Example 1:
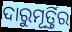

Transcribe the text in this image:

ଦାରୁମୂର୍ତ୍ତିର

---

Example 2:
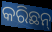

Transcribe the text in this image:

କରିଛନ୍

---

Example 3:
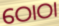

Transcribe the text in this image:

ଠୋଠା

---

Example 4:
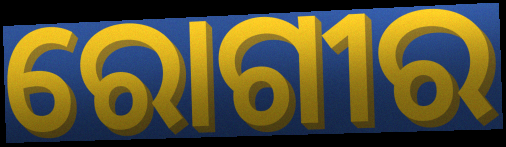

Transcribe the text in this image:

ରୋଗୀର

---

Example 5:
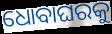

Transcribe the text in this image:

ଧୋବାଘରକୁ